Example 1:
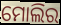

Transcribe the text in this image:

ମୋଲିର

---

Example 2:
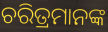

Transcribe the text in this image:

ଚରିତ୍ରମାନଙ୍କ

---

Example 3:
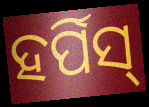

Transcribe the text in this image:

ହର୍ପିସ୍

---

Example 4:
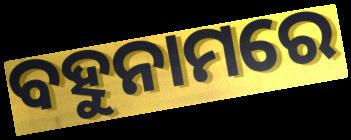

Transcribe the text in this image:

ବହୁନାମରେ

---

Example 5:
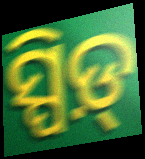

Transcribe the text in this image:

ସ୍ପିଡ଼୍